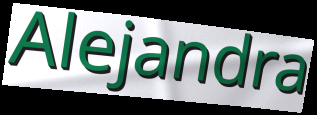
Alejandra